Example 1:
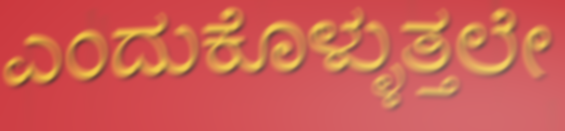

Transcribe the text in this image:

ಎಂದುಕೊಳ್ಳುತ್ತಲೇ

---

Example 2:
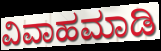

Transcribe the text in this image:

ವಿವಾಹಮಾಡಿ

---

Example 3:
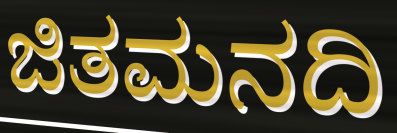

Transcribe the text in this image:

ಜಿತಮನದಿ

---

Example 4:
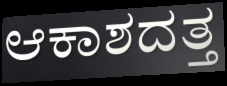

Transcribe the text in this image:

ಆಕಾಶದತ್ತ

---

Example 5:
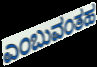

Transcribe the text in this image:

ಎಂಬುವಂತಹ